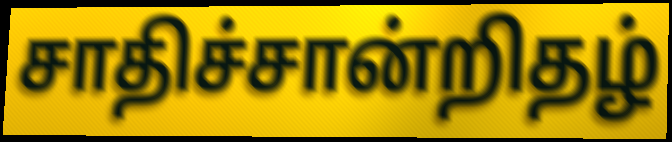
சாதிச்சான்றிதழ்